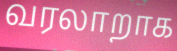
வரலாறாக